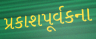
પ્રકાશપૂર્વકના